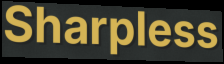
Sharpless